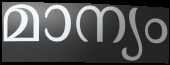
മാന്യം